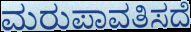
ಮರುಪಾವತಿಸದೆ